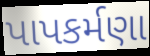
પાપકર્મણા